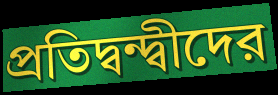
প্রতিদ্বন্দ্বীদের